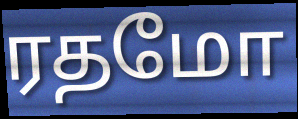
ரதமோ